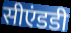
सीएंडडी